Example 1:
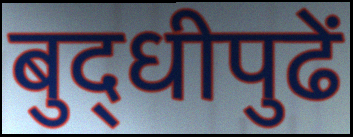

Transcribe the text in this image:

बुद्धीपुढें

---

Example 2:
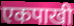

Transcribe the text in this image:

एकपाखी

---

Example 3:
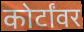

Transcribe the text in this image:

कोर्टांवर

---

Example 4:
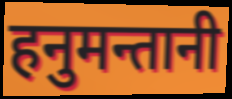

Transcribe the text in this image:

हनुमन्तानी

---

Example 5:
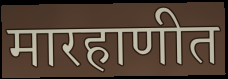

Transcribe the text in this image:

मारहाणीत